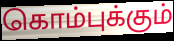
கொம்புக்கும்